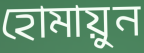
হোমায়ুন